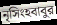
নৃসিংহবাবুর